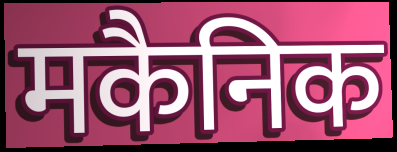
मकैनिक